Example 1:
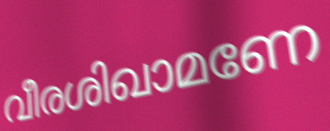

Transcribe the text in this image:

വീരശിഖാമണേ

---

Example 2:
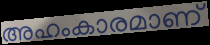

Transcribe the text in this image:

അഹംകാരമാണ്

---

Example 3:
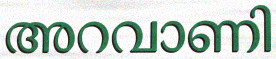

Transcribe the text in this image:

അറവാണി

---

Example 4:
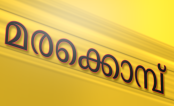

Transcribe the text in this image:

മരക്കൊമ്പ്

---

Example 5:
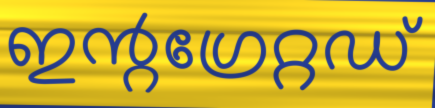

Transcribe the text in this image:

ഇന്റഗ്രേറ്റഡ്